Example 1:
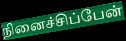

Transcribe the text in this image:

நினைச்சிப்பேன்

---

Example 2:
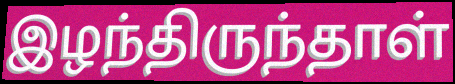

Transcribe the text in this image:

இழந்திருந்தாள்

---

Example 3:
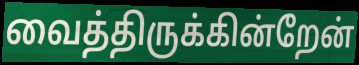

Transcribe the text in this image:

வைத்திருக்கின்றேன்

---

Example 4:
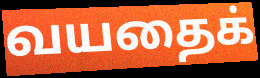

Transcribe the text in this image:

வயதைக்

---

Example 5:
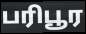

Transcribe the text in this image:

பரிபூர